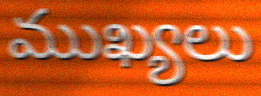
ముఖ్యలు